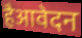
हैआवेदन